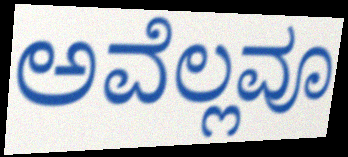
ಅವೆಲ್ಲವೂ